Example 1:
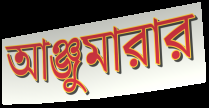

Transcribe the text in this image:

আঞ্জুমারার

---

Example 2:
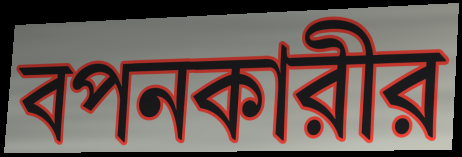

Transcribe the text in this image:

বপনকারীর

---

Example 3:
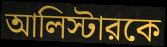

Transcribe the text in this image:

আলিস্টারকে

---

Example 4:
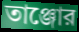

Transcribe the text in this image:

তাঞ্জোর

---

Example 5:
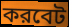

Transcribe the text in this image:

করবেট